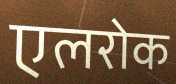
एलरोक